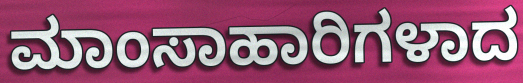
ಮಾಂಸಾಹಾರಿಗಳಾದ